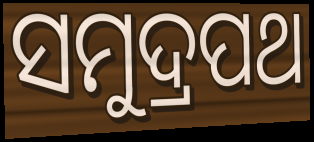
ସମୁଦ୍ରପଥ